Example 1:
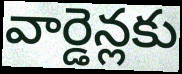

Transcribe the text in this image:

వార్డెన్లకు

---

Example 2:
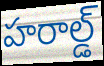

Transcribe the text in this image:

హరాల్డ్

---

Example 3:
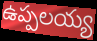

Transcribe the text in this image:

ఉప్పలయ్య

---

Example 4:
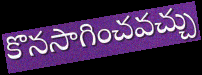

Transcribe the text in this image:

కొనసాగించవచ్చు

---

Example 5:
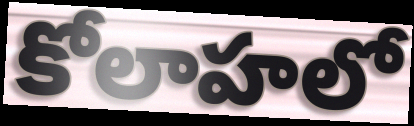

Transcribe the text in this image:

కోలాహలో